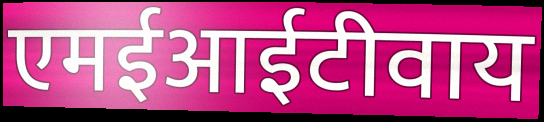
एमईआईटीवाय